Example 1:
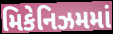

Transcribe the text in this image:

મિકેનિઝમમાં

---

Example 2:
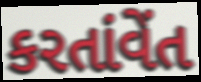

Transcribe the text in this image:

કરતાંવેંત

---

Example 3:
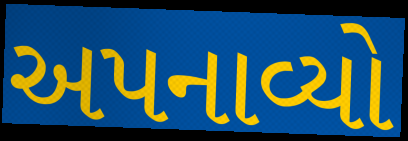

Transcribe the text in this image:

અપનાવ્યો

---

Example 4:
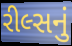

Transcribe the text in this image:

રીલ્સનું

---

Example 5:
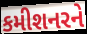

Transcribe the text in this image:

કમીશનરને